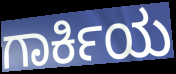
ಗಾರ್ಕಿಯ